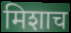
मिशाच